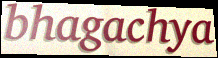
bhagachya